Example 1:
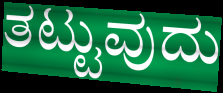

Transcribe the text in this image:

ತಟ್ಟುವುದು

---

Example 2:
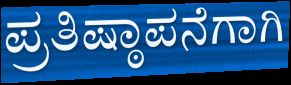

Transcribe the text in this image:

ಪ್ರತಿಷ್ಠಾಪನೆಗಾಗಿ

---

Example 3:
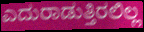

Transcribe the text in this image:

ಎದುರಾಡುತ್ತಿರಲಿಲ್ಲ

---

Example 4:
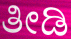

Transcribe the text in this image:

ತೀಡಿ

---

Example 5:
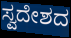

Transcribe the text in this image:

ಸ್ವದೇಶದ